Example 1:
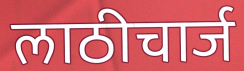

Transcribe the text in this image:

लाठीचार्ज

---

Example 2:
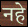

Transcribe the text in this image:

नहे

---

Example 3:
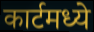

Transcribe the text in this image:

कार्टमध्ये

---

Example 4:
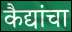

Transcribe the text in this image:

कैद्यांचा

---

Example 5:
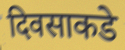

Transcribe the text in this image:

दिवसाकडे